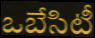
ఒబేసిటీ